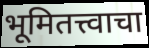
भूमितत्त्वाचा